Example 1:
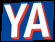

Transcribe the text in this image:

YA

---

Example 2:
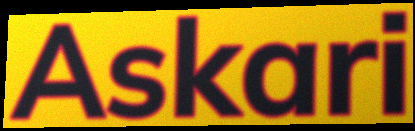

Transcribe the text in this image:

Askari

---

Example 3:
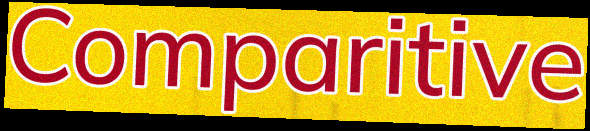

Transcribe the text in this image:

Comparitive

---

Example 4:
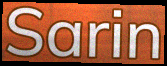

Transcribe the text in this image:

Sarin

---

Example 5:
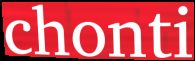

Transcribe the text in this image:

chonti